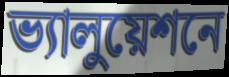
ভ্যালুয়েশনে